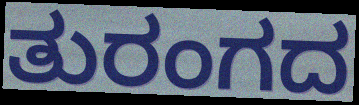
ತುರಂಗದ